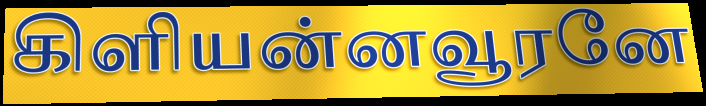
கிளியன்னவூரனே